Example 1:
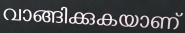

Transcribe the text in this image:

വാങ്ങിക്കുകയാണ്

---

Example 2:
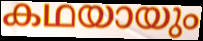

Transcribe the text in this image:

കഥയായും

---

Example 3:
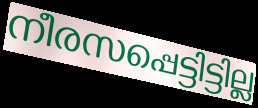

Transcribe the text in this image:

നീരസപ്പെട്ടിട്ടില്ല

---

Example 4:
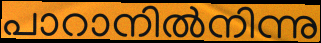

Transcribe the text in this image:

പാറാനിൽനിന്നു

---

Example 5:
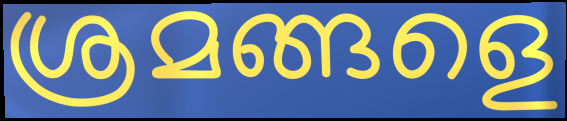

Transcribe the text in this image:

ശ്രമങ്ങളെ